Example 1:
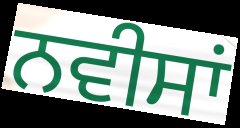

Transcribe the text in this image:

ਨਵੀਸਾਂ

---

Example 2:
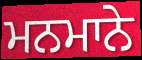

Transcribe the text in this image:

ਮਨਮਾਨੇ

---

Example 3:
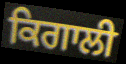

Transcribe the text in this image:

ਕਿਗਾਲੀ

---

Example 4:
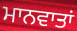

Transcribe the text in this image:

ਮਾਨਵਾਤਾਂ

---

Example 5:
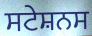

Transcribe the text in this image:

ਸਟੇਸ਼ਨਸ